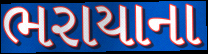
ભરાયાના